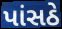
પાંસઠે